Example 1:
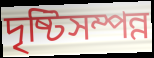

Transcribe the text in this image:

দৃষ্টিসম্পন্ন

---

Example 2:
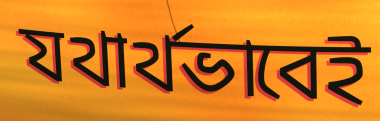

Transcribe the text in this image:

যথার্থভাবেই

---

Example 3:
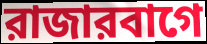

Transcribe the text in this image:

রাজারবাগে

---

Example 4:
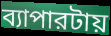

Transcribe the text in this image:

ব্যাপারটায়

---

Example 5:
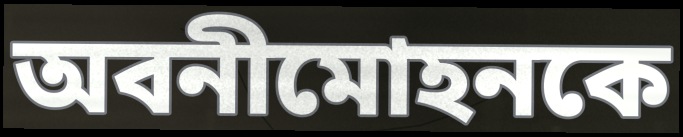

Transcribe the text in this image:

অবনীমোহনকে